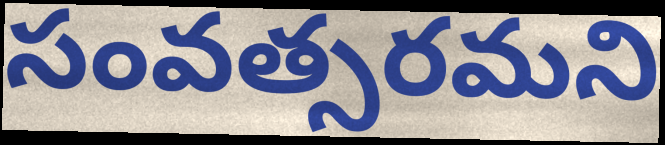
సంవత్సరమని